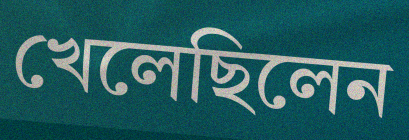
খেলেছিলেন